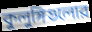
কুলুঙ্গিগুলোর